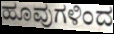
ಹೂವುಗಳಿಂದ